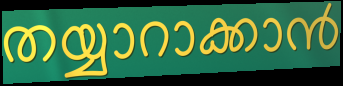
തയ്യാറാക്കാൻ